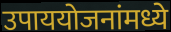
उपाययोजनांमध्ये